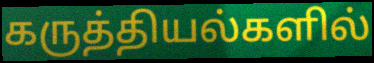
கருத்தியல்களில்